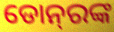
ଡୋନ୍‌ରଙ୍କ